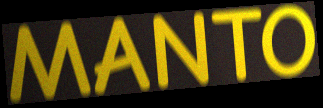
MANTO